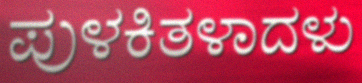
ಪುಳಕಿತಳಾದಳು